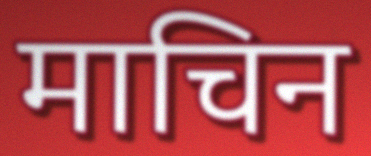
माचिन